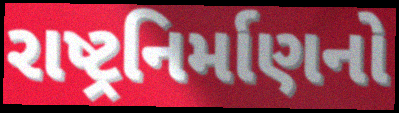
રાષ્ટ્રનિર્માણનો